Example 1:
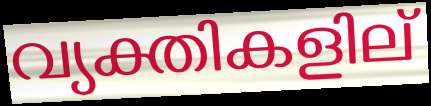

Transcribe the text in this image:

വ്യക്തികളില്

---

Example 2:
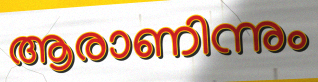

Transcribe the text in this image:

ആരാണിന്നും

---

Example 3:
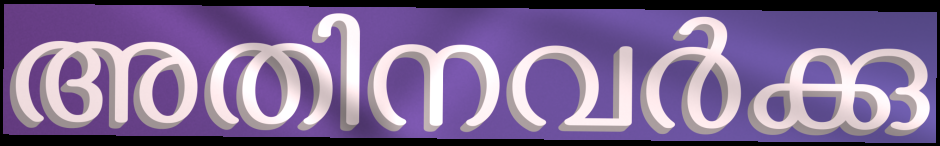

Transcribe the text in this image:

അതിനവർക്കു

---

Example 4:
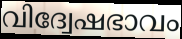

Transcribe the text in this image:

വിദ്വേഷഭാവം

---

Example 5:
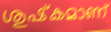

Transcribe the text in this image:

ശുഷ്‌കമാണ്